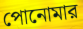
পোনোমার